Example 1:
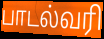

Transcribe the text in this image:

பாடல்வரி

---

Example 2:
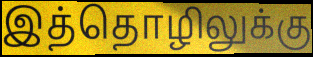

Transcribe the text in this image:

இத்தொழிலுக்கு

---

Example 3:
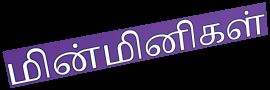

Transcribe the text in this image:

மின்மினிகள்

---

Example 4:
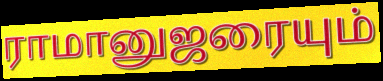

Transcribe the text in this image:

ராமானுஜரையும்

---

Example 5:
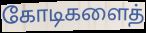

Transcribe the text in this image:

கோடிகளைத்